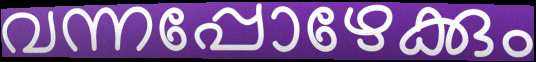
വന്നപ്പോഴേക്കും